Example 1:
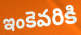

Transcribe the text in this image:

ఇంకెవరికి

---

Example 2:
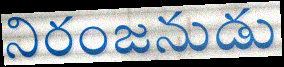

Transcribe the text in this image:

నిరంజనుడు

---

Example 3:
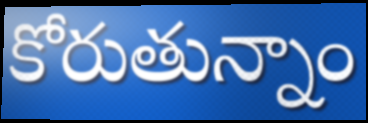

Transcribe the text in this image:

కోరుతున్నాం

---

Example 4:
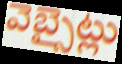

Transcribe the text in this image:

వెబ్సైట్లు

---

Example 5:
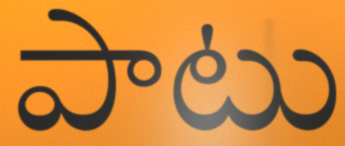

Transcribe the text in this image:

పాటు